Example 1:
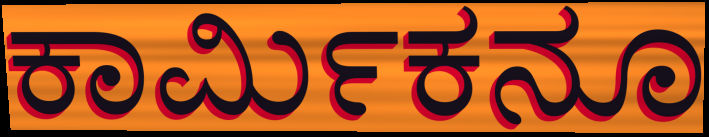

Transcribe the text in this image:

ಕಾರ್ಮಿಕನೂ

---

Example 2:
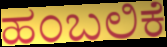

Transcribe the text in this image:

ಹಂಬಲಿಕೆ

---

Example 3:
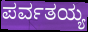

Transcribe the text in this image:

ಪರ್ವತಯ್ಯ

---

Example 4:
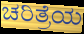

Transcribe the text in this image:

ಚರಿತ್ರೆಯ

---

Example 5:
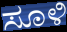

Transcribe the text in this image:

ಸೂಳಿ